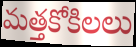
మత్తకోకిలలు